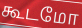
கூடமோ